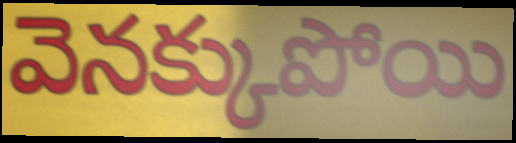
వెనక్కుపోయి